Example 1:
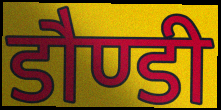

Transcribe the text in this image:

डौण्डी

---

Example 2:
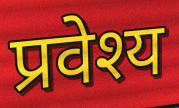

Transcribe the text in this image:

प्रवेश्य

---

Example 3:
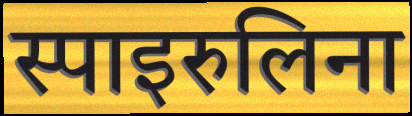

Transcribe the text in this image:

स्पाइरुलिना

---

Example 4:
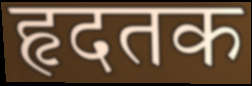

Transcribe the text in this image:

हृदतक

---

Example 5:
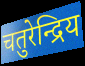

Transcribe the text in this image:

चतुरेन्द्रिय